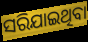
ସରିଯାଇଥିବା